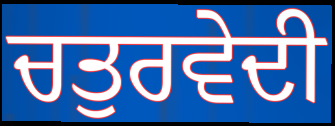
ਚਤੁਰਵੇਦੀ